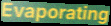
Evaporating